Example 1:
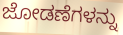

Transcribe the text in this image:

ಜೋಡಣೆಗಳನ್ನು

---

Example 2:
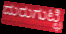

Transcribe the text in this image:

ದುರುಗುಟ್ಟಿ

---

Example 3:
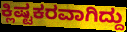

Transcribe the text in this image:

ಕ್ಲಿಷ್ಟಕರವಾಗಿದ್ದು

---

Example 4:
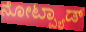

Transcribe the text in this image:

ನೋಟ್ಪ್ಯಾಡ್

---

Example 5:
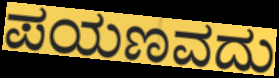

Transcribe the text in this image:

ಪಯಣವದು